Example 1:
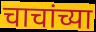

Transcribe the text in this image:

चाचांच्या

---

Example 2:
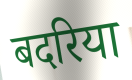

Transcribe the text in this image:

बदरिया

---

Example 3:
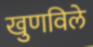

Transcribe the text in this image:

खुणविले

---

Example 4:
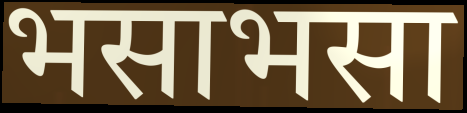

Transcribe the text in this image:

भसाभसा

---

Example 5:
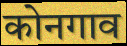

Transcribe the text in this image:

कोनगाव